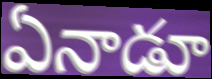
ఏనాడూ